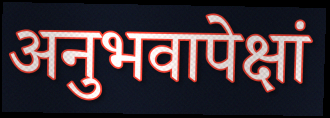
अनुभवापेक्षां